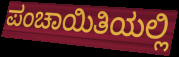
ಪಂಚಾಯಿತಿಯಲ್ಲಿ